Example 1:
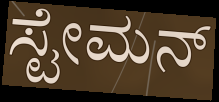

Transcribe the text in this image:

ಸ್ಟೇಮನ್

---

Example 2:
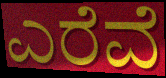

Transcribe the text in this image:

ಎರೆವೆ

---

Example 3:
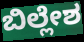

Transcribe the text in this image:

ಬಿಲ್ಲೇಶ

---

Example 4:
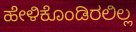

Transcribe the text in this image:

ಹೇಳಿಕೊಂಡಿರಲಿಲ್ಲ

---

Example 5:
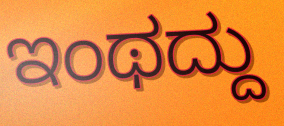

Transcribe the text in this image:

ಇಂಥದ್ದು